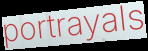
portrayals